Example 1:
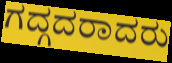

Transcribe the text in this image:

ಗದ್ಗದರಾದರು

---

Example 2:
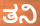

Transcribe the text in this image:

ತನಿ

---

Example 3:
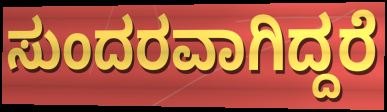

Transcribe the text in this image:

ಸುಂದರವಾಗಿದ್ದರೆ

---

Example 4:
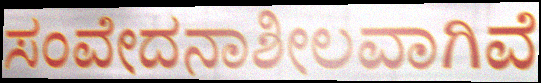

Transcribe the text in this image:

ಸಂವೇದನಾಶೀಲವಾಗಿವೆ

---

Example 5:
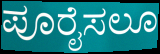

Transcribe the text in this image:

ಪೂರೈಸಲೂ